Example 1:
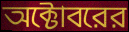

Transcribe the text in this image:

অক্টোবরের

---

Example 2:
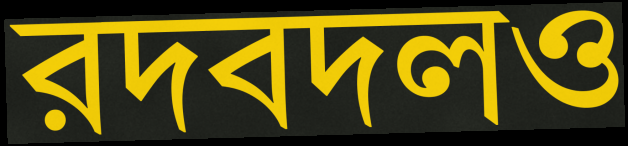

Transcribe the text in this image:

রদবদলও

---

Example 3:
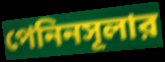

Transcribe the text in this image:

পেনিনসূলার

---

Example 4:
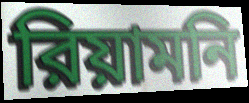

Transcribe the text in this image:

রিয়ামনি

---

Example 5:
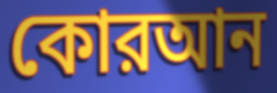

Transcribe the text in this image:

কোরআন